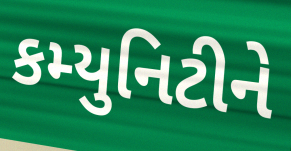
કમ્યુનિટીને